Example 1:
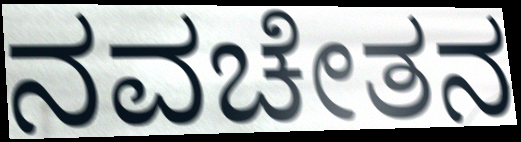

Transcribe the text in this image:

ನವಚೇತನ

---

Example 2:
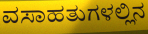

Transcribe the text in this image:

ವಸಾಹತುಗಳಲ್ಲಿನ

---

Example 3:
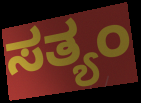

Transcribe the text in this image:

ಸತ್ಯಂ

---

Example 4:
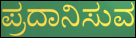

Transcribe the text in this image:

ಪ್ರದಾನಿಸುವ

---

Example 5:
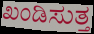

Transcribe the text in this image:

ಖಂಡಿಸುತ್ತ